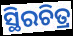
ସ୍ଥିରଚିତ୍ର